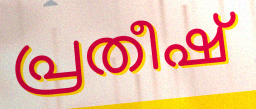
പ്രതീഷ്